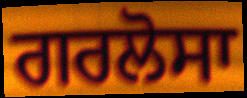
ਗਰਲੋਸਾ